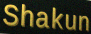
Shakun